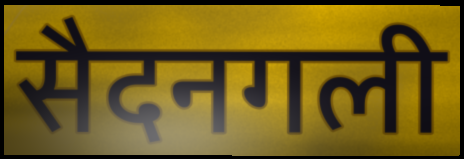
सैदनगली